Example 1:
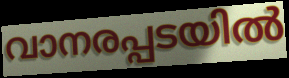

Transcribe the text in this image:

വാനരപ്പടയിൽ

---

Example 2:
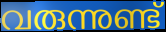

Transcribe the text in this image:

വരുന്നുണ്ട്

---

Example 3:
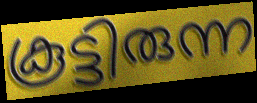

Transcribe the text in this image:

കൂട്ടിരുന്ന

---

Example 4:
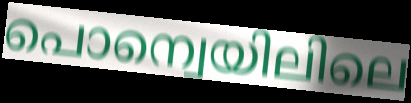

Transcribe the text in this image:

പൊന്വെയിലിലെ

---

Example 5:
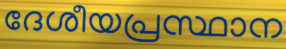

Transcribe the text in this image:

ദേശീയപ്രസ്ഥാന